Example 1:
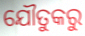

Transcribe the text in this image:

ଯୌତୁକରୁ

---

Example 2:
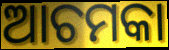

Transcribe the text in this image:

ଆଚମକା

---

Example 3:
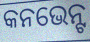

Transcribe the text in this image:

କନଭେନ୍ଟ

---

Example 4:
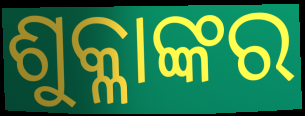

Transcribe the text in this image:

ଶୁକ୍ଳାଙ୍କର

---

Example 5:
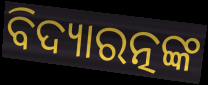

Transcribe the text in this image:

ବିଦ୍ୟାରତ୍ନଙ୍କ